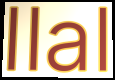
Ilal